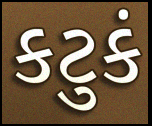
કટુકં